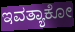
ಇವತ್ಯಾಕೋ